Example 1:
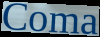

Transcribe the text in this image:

Coma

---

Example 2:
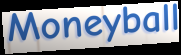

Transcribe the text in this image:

Moneyball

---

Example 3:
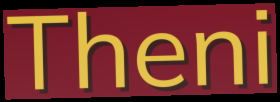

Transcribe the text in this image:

Theni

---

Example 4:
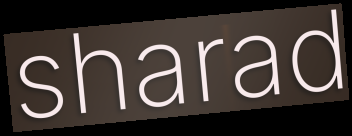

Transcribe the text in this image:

sharad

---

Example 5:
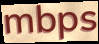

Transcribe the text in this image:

mbps